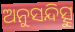
ଅନୁସନ୍ଦିତ୍ସୁ